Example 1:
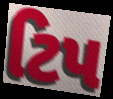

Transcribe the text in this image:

ટિપ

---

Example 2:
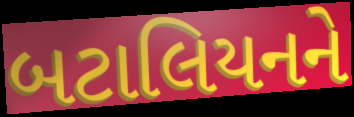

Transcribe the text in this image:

બટાલિયનને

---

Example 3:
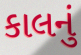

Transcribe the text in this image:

કાલનું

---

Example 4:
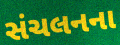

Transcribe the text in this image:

સંચલનના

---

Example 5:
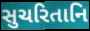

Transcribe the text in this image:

સુચરિતાનિ